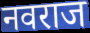
नवराज